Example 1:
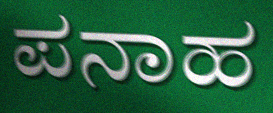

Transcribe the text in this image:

ಪನಾಹ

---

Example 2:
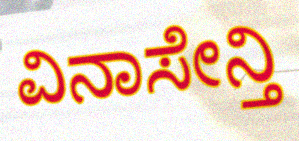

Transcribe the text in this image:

ವಿನಾಸೇನ್ತಿ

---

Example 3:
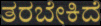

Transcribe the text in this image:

ತರಬೇಕಿದೆ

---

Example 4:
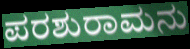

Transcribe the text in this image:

ಪರಶುರಾಮನು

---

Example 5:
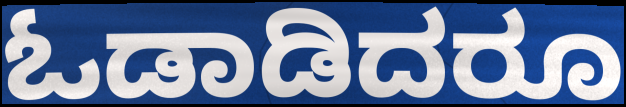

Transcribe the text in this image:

ಓಡಾಡಿದರೂ